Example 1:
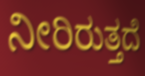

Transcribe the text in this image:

ನೀರಿರುತ್ತದೆ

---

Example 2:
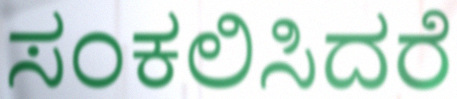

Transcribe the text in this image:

ಸಂಕಲಿಸಿದರೆ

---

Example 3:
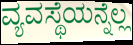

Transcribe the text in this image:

ವ್ಯವಸ್ಥೆಯನ್ನೆಲ್ಲ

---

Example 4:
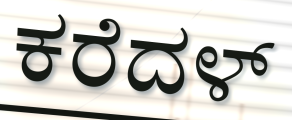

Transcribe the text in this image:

ಕರೆದಳ್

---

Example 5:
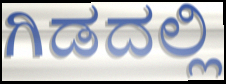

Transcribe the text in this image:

ಗಿಡದಲ್ಲಿ